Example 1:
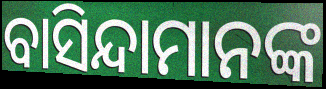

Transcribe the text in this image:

ବାସିନ୍ଦାମାନଙ୍କ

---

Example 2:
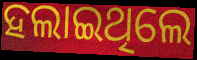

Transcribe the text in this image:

ହଲାଇଥିଲେ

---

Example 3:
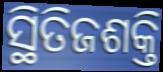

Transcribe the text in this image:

ସ୍ଥିତିଜଶକ୍ତି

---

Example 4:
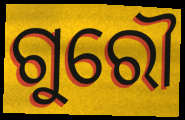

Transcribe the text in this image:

ଗୁରୌ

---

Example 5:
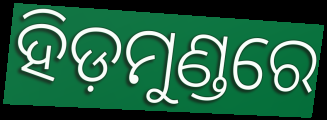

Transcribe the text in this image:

ହିଡ଼ମୁଣ୍ଡରେ